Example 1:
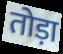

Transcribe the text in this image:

तोड़ा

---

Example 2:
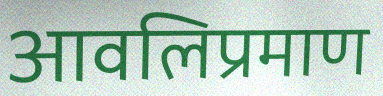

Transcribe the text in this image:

आवलिप्रमाण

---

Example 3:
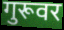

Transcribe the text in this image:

गुरूवर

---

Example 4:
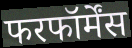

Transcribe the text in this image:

फरफॉर्मेंस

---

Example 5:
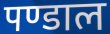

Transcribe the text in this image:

पण्डाल